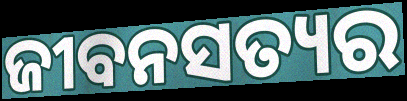
ଜୀବନସତ୍ୟର